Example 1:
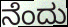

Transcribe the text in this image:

ನೆಂದು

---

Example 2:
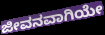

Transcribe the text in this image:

ಜೀವನವಾಗಿಯೇ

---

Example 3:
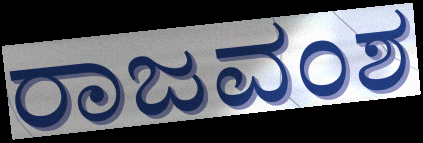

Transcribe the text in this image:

ರಾಜವಂಶ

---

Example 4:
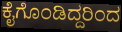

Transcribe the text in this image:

ಕೈಗೊಂಡಿದ್ದರಿಂದ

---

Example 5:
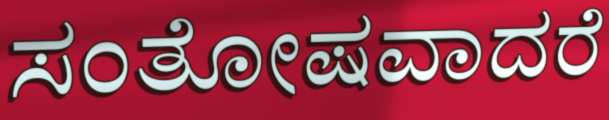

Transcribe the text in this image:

ಸಂತೋಷವಾದರೆ